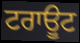
ਟਰਾਊਟ